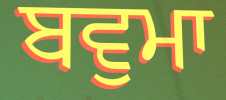
ਬਵੁਮਾ